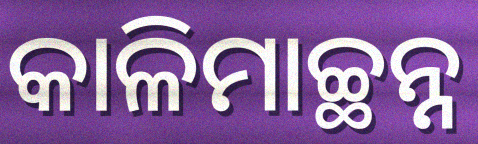
କାଳିମାଚ୍ଛନ୍ନ